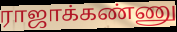
ராஜாக்கண்ணு